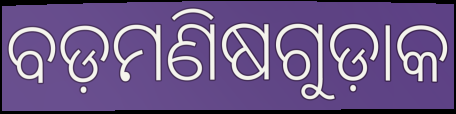
ବଡ଼ମଣିଷଗୁଡ଼ାକ